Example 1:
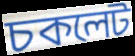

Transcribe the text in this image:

চকলেট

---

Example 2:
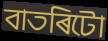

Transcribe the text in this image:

বাতৰিটো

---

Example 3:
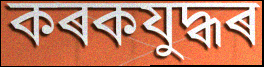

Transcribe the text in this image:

কৰকযুদ্ধৰ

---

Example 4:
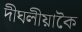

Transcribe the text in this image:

দীঘলীয়াকৈ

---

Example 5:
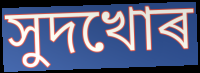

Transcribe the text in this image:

সুদখোৰ